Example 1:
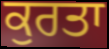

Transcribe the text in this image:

ਕੁਰਤਾ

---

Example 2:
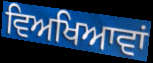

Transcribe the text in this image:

ਵਿਅਖਿਆਵਾਂ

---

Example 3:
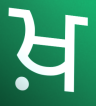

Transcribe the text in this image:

ਖ਼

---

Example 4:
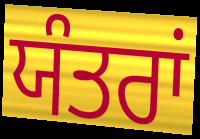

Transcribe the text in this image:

ਯੰਤਰਾਂ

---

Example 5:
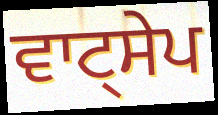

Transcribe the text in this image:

ਵਾਟ੍ਸੇਪ